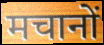
मचानों